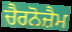
ਚੈਰਨੋਜ਼ੈਮ